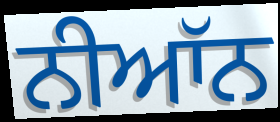
ਨੀਆੱਨ